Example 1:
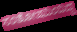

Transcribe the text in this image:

ಸಂತೋಷದಿಂದಿದ್ದ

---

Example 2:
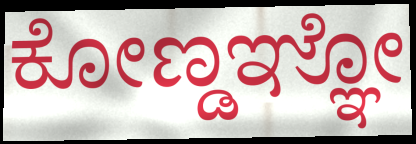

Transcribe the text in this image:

ಕೋಣ್ಡಞ್ಞೋ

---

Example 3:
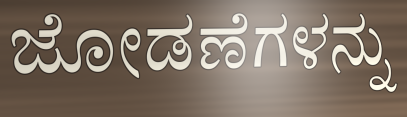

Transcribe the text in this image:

ಜೋಡಣೆಗಳನ್ನು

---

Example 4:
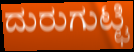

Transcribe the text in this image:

ದುರುಗುಟ್ಟಿ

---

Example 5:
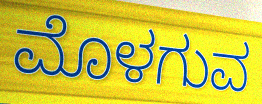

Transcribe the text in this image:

ಮೊಳಗುವ